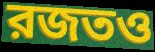
রজতও